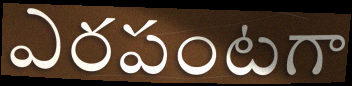
ఎరపంటగా